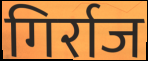
गिर्राज